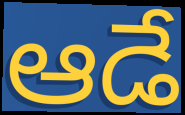
ఆడే